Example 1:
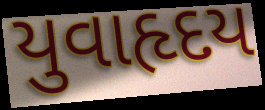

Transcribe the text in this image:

યુવાહૃદય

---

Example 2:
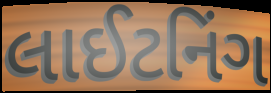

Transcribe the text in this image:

લાઈટનિંગ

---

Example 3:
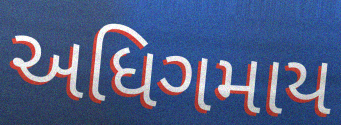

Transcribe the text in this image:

અધિગમાય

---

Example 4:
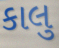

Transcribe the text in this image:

કાલુ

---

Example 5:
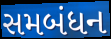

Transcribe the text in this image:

સમબંધન